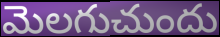
మెలగుచుందు